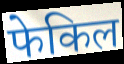
फेकिल